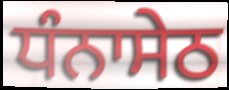
ਧੰਨਾਸੇਠ